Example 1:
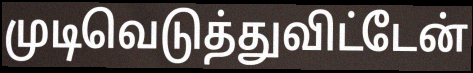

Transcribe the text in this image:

முடிவெடுத்துவிட்டேன்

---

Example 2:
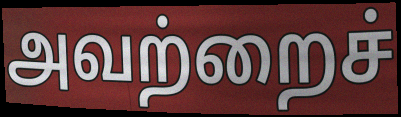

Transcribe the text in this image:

அவற்றைச்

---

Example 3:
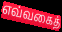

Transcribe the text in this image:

எவ்வகைத்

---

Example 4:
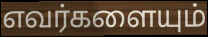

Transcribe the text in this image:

எவர்களையும்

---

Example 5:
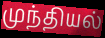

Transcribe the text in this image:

முந்தியல்